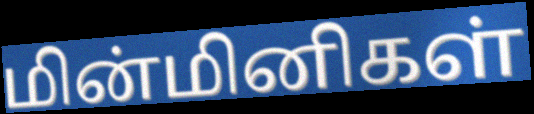
மின்மினிகள்